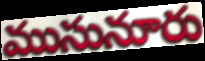
ముసునూరు